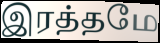
இரத்தமே